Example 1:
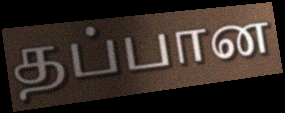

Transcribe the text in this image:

தப்பான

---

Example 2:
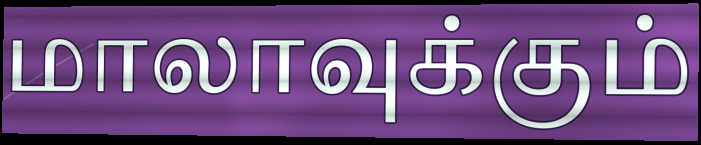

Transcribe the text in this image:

மாலாவுக்கும்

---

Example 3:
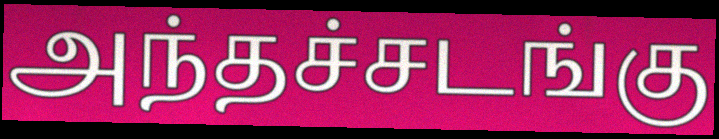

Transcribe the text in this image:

அந்தச்சடங்கு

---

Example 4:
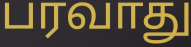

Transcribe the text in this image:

பரவாது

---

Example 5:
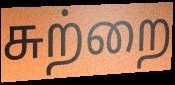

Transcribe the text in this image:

சுற்றை